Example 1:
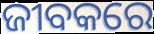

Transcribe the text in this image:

ଜୀବକରେ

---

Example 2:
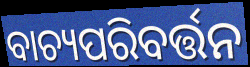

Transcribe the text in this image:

ବାଚ୍ୟପରିବର୍ତ୍ତନ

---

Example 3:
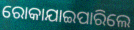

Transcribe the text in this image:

ରୋକାଯାଇପାରିଲେ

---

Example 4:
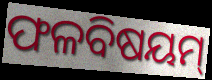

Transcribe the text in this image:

ଫଳବିଷୟମ୍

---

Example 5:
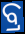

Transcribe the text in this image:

ବ୍ର